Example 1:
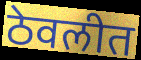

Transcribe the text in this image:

ठेवलीत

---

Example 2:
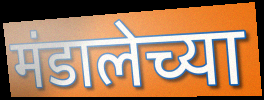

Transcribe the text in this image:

मंडालेच्या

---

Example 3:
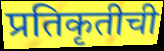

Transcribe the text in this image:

प्रतिकृतीची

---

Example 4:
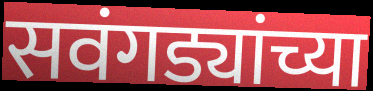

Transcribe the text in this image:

सवंगड्यांच्या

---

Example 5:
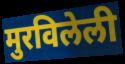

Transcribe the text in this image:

मुरविलेली